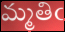
మ్మతిఁ